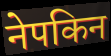
नेपकिन